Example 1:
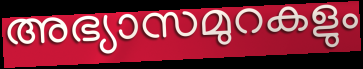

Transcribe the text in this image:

അഭ്യാസമുറകളും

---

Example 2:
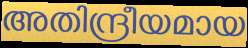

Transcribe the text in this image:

അതിന്ദ്രീയമായ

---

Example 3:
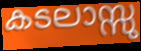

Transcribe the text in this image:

കടലാസ്സു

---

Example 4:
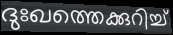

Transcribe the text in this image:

ദുഃഖത്തെക്കുറിച്ച്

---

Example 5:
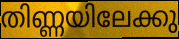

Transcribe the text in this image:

തിണ്ണയിലേക്കു